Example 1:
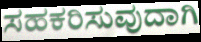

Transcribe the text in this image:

ಸಹಕರಿಸುವುದಾಗಿ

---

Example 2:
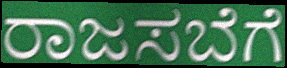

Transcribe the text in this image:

ರಾಜಸಬೆಗೆ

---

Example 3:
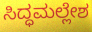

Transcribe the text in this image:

ಸಿದ್ಧಮಲ್ಲೇಶ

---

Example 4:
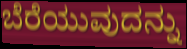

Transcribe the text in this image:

ಬೆರೆಯುವುದನ್ನು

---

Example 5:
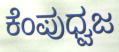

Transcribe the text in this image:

ಕೆಂಪುಧ್ವಜ